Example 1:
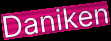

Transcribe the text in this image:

Daniken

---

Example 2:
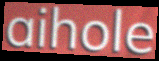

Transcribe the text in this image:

aihole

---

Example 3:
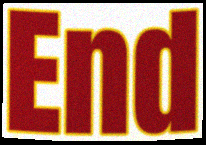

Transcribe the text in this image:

End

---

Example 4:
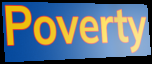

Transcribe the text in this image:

Poverty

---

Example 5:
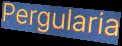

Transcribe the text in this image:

Pergularia